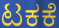
ಟಕಕೆ